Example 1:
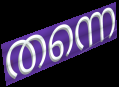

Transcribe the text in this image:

തന്നെ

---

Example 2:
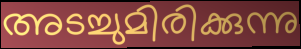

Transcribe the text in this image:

അടച്ചുമിരിക്കുന്നു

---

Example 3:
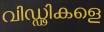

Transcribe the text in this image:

വിഡ്ഢികളെ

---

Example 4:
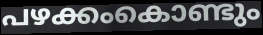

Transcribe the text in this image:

പഴക്കംകൊണ്ടും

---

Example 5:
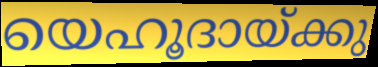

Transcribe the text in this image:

യെഹൂദായ്ക്കു